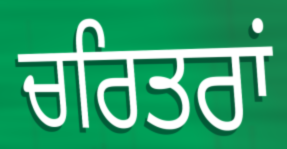
ਚਰਿਤਰਾਂ